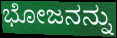
ಭೋಜನನ್ನು